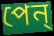
পেন্